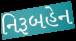
નિરૂબહેન